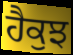
ਹੈਕੁਝ